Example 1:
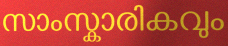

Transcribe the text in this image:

സാംസ്കാരികവും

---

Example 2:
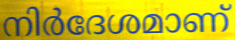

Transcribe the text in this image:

നിർദേശമാണ്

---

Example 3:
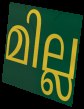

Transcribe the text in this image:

മില്ല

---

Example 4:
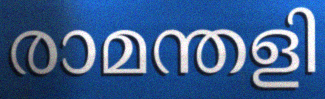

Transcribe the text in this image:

രാമന്തളി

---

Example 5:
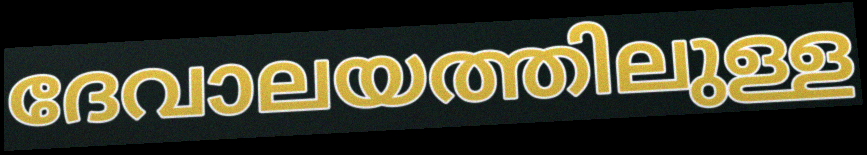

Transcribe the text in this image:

ദേവാലയത്തിലുള്ള